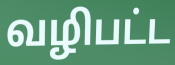
வழிபட்ட